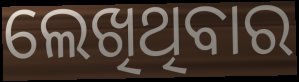
ଲେଖିଥିବାର